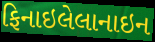
ફિનાઇલેલાનાઇન